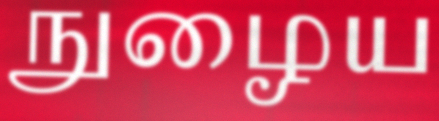
நுழைய